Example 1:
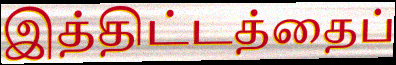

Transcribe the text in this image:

இத்திட்டத்தைப்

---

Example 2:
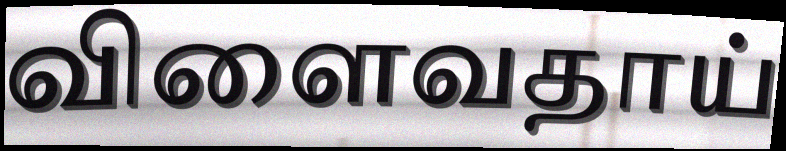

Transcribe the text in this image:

விளைவதாய்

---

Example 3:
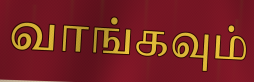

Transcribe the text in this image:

வாங்கவும்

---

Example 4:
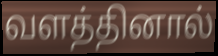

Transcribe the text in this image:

வளத்தினால்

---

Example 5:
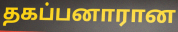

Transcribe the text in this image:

தகப்பனாரான